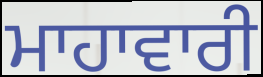
ਮਾਹਾਵਾਰੀ